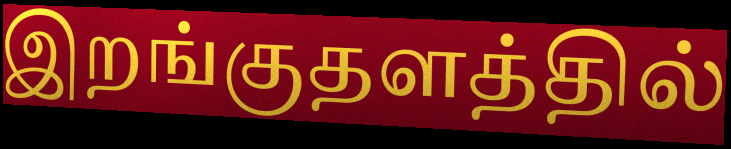
இறங்குதளத்தில்